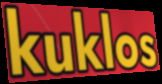
kuklos